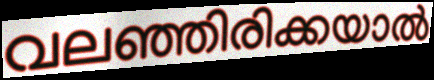
വലഞ്ഞിരിക്കയാൽ